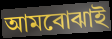
আমবোঝাই